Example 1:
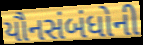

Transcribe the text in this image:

યૌનસંબંધોની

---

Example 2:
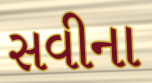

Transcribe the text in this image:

સવીના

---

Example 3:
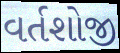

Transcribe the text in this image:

વર્તશોજી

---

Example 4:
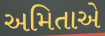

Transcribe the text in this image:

અમિતાએ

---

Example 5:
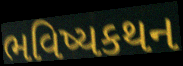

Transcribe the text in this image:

ભવિષ્યકથન